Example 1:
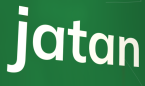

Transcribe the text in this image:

jatan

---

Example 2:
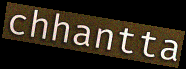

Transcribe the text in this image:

chhantta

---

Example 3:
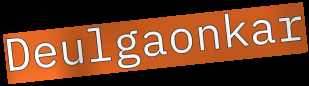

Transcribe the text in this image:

Deulgaonkar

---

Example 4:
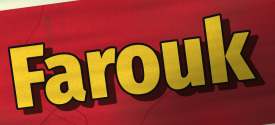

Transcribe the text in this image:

Farouk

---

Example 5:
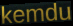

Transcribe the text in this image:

kemdu